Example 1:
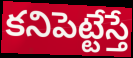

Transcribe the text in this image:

కనిపెట్టేస్తే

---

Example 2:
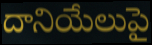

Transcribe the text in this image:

దానియేలుపై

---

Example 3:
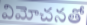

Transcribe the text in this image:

విమోచనతో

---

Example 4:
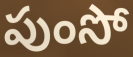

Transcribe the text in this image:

పుంసో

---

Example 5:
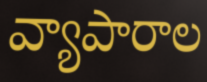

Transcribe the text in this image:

వ్యాపారాల